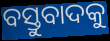
ବସ୍ତୁବାଦକୁ